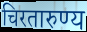
चिरतारुण्य